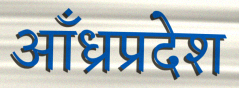
आँध्रप्रदेश